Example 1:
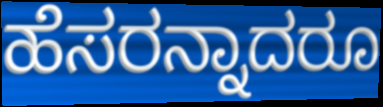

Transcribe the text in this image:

ಹೆಸರನ್ನಾದರೂ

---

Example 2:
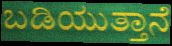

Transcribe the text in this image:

ಬಡಿಯುತ್ತಾನೆ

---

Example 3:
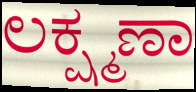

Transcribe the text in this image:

ಲಕ್ಷ್ಮಣಾ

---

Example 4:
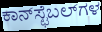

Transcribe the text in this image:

ಕಾನ್‌ಸ್ಟೆಬಲ್‌ಗಳ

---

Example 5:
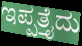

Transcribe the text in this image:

ಇಪ್ಪತ್ತೈದು